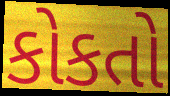
કોકતો